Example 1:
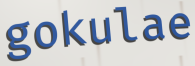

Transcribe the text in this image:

gokulae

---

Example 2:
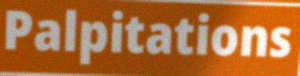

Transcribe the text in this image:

Palpitations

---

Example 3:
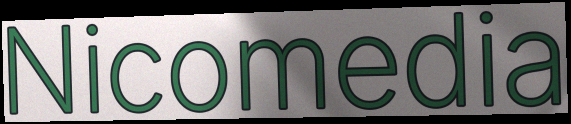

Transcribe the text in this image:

Nicomedia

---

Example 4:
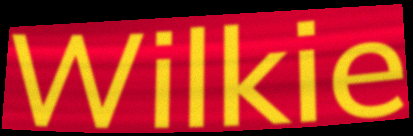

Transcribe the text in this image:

Wilkie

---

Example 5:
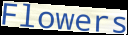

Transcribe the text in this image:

Flowers